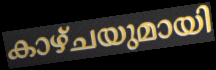
കാഴ്ചയുമായി